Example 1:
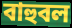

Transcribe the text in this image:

বাহুবল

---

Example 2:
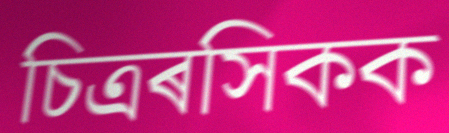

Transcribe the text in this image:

চিত্ৰৰসিকক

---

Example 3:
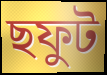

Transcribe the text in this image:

ছফুট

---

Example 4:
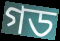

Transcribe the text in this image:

গড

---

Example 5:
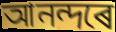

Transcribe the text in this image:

আনন্দৰে